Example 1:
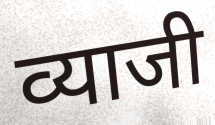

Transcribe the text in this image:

व्याजी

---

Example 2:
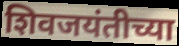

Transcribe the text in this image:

शिवजयंतीच्या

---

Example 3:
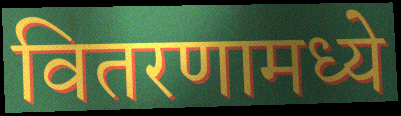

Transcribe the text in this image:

वितरणामध्ये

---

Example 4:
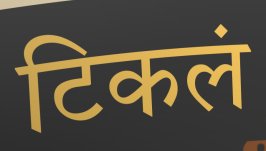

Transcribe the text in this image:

टिकलं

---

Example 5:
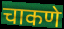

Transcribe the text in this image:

चाकणे